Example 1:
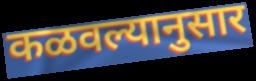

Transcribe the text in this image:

कळवल्यानुसार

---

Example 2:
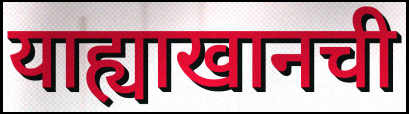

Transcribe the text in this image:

याह्याखानची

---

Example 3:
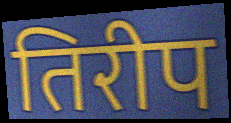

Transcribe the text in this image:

तिरीप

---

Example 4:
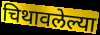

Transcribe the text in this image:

चिथावलेल्या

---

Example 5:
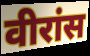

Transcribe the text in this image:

वीरांस